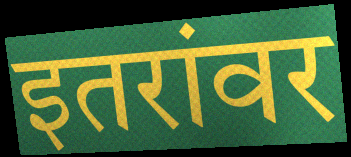
इतरांवर